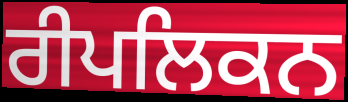
ਰੀਪਲਿਕਨ